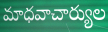
మాధవాచార్యుల